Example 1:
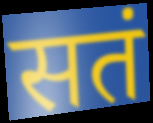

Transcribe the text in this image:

सतं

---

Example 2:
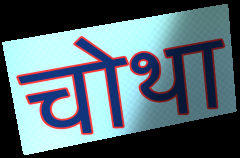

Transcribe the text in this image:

चोथा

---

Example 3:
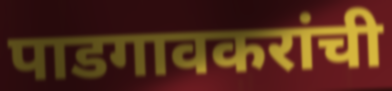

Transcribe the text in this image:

पाडगावकरांची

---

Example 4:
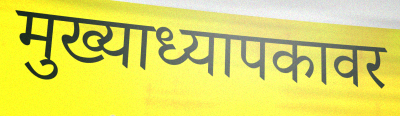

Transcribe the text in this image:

मुख्याध्यापकावर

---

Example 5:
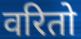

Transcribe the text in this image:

वरितो